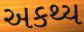
અકથ્ય